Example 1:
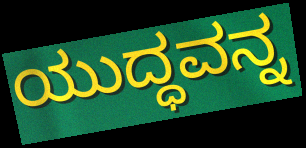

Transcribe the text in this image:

ಯುದ್ಧವನ್ನ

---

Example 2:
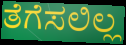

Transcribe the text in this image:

ತೆಗೆಸಲಿಲ್ಲ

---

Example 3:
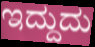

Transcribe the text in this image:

ಇದ್ದುದು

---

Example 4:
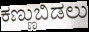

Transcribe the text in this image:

ಕಣ್ಣುಬಿಡಲು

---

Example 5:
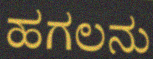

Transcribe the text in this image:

ಹಗಲನು